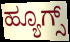
ಹ್ಯೂಗ್ಸ್